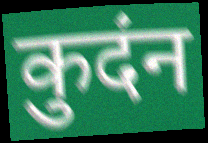
कुदंन